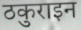
ठकुराइन